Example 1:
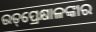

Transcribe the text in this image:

ଉତ୍‌ପ୍ରେକ୍ଷାଳଙ୍କାର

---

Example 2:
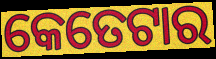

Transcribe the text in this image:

କେତେଟାର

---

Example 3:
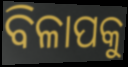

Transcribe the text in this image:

ବିଳାପକୁ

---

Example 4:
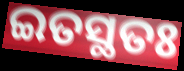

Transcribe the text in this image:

ଇତସ୍ଥତଃ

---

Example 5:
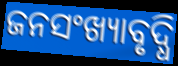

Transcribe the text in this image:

ଜନସଂଖ୍ୟାବୃଦ୍ଧି